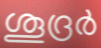
ശൂദ്രർ